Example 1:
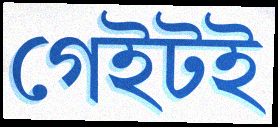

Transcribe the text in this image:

গেইটই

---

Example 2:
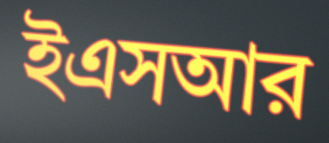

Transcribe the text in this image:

ইএসআর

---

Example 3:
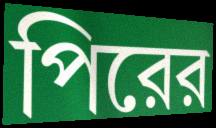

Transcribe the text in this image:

পিরের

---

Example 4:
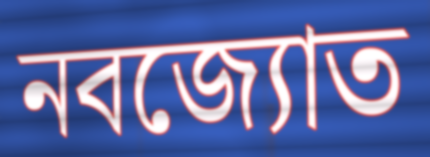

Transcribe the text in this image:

নবজ্যোত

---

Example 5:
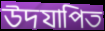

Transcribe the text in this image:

উদযাপিত